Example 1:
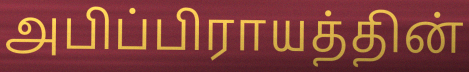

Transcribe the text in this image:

அபிப்பிராயத்தின்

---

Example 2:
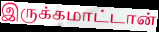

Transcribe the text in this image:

இருக்கமாட்டான்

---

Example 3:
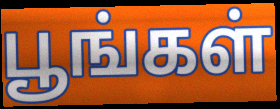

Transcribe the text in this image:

பூங்கள்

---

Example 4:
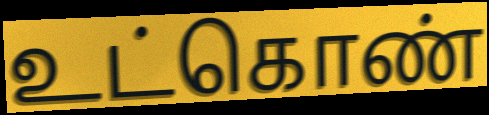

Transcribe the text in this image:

உட்கொண்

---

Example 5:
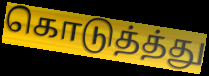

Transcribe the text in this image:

கொடுத்த்து